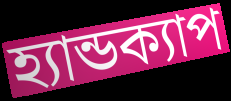
হ্যান্ডক্যাপ